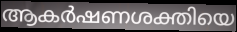
ആകർഷണശക്തിയെ